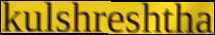
kulshreshtha